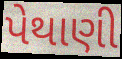
પેથાણી